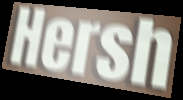
Hersh